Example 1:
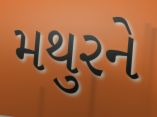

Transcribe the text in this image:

મથુરને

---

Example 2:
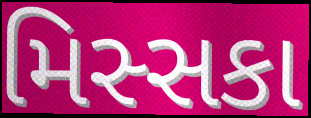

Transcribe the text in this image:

મિસ્સકા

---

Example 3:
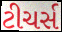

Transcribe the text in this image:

ટીચર્સ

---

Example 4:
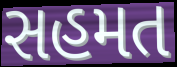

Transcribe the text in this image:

સહમત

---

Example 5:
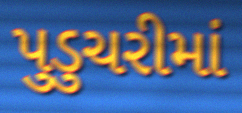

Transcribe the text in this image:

પુડુચરીમાં